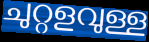
ചുറ്റളവുള്ള